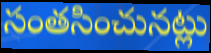
సంతసించునట్లు